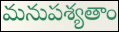
మనుపశ్యతాం